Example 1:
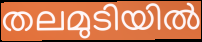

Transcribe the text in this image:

തലമുടിയിൽ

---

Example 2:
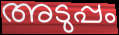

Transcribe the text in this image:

അടുപ്പം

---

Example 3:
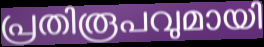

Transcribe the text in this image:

പ്രതിരൂപവുമായി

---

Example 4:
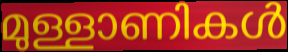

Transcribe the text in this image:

മുള്ളാണികൾ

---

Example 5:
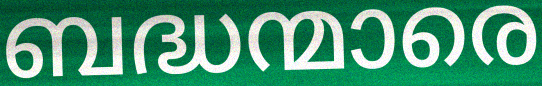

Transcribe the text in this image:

ബദ്ധന്മാരെ